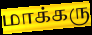
மாக்கரு